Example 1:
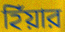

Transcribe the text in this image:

হিঁয়ার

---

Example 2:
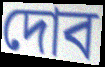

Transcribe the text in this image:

দোব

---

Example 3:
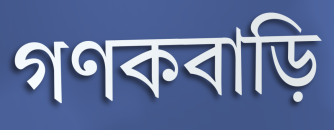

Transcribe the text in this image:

গণকবাড়ি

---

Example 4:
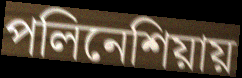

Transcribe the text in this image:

পলিনেশিয়ায়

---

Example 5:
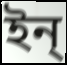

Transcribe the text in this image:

ইন্